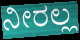
ನೀರಲ್ಲ